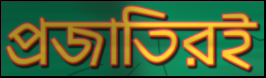
প্রজাতিরই